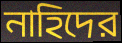
নাহিদের